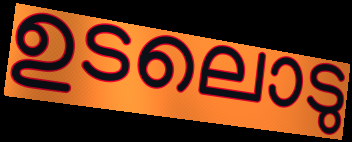
ഉടലൊടു